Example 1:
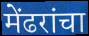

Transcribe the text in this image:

मेंढरांचा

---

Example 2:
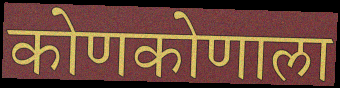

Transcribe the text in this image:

कोणकोणाला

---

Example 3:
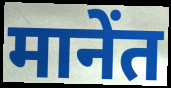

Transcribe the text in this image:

मानेंत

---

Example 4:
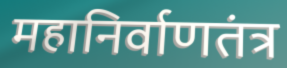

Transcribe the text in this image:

महानिर्वाणतंत्र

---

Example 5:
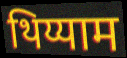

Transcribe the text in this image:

थिय्याम